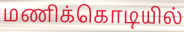
மணிக்கொடியில்